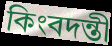
কিংবদন্তী